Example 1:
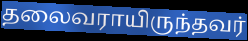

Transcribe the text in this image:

தலைவராயிருந்தவர்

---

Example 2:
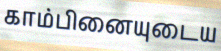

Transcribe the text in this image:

காம்பினையுடைய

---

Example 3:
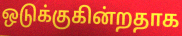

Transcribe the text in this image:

ஒடுக்குகின்றதாக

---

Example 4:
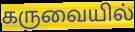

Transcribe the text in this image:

கருவையில்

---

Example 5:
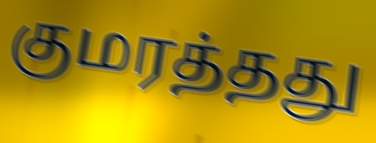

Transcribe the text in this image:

குமரத்தது